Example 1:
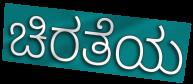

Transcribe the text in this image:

ಚಿರತೆಯ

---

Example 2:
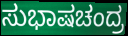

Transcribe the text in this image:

ಸುಭಾಷಚಂದ್ರ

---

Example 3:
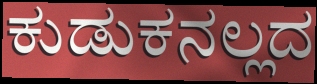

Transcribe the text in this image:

ಕುಡುಕನಲ್ಲದ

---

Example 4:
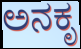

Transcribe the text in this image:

ಅನಕೃ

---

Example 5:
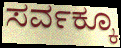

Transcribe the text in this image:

ಸರ್ವಕ್ಕೂ